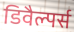
डिवैल्पर्स